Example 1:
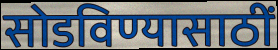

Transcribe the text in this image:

सोडविण्यासाठीं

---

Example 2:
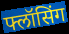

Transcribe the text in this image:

फ्लॉसिंग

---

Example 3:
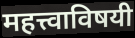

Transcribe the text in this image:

महत्त्वाविषयी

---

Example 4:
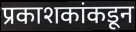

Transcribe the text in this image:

प्रकाशकांकडून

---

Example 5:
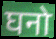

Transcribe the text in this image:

घनो